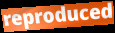
reproduced